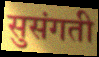
सुसंगती